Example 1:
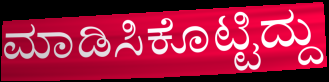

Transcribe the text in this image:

ಮಾಡಿಸಿಕೊಟ್ಟಿದ್ದು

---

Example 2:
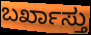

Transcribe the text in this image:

ಬರ್ಖಾಸ್ತು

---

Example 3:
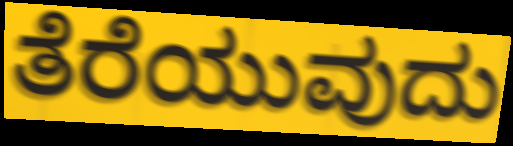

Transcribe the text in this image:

ತೆರೆಯುವುದು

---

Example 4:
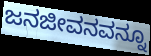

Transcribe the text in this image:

ಜನಜೀವನವನ್ನೂ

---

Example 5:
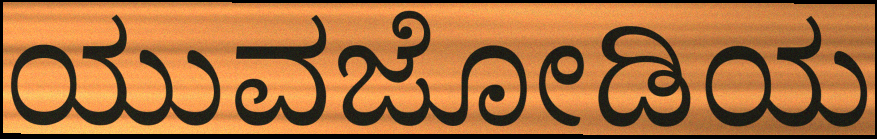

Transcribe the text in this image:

ಯುವಜೋಡಿಯ